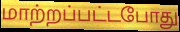
மாற்றப்பட்டபோது